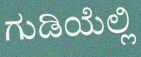
ಗುಡಿಯೆಲ್ಲಿ